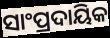
ସାଂପ୍ରଦାୟିକ